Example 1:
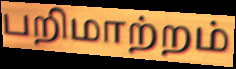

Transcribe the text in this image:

பறிமாற்றம்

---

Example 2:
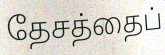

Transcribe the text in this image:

தேசத்தைப்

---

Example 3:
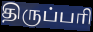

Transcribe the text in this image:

திருப்பரி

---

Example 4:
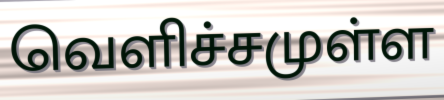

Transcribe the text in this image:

வெளிச்சமுள்ள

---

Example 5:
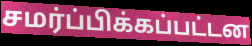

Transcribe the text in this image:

சமர்ப்பிக்கப்பட்டன